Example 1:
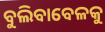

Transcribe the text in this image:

ବୁଲିବାବେଳକୁ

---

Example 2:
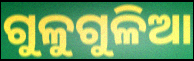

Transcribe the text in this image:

ଗୁଳୁଗୁଳିଆ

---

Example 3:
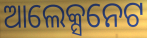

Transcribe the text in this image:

ଆଲେକ୍ସନେଟ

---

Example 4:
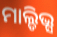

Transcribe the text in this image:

ମାଲ୍ଡିଭ୍ସ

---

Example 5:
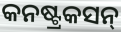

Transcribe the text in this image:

କନଷ୍ଟ୍ରକସନ୍